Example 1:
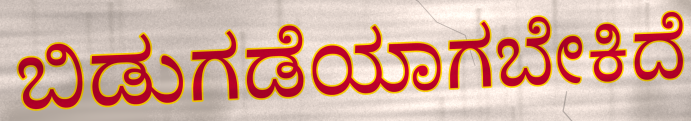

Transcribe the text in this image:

ಬಿಡುಗಡೆಯಾಗಬೇಕಿದೆ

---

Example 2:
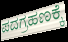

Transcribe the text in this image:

ಪದಗ್ರಹಣಕ್ಕೆ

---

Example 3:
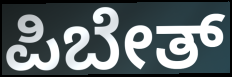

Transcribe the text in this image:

ಪಿಬೇತ್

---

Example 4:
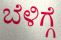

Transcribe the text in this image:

ಬೆಳಿಗ್ಗೆ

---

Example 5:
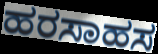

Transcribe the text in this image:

ಹರಸಾಹಸ